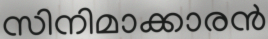
സിനിമാക്കാരൻ